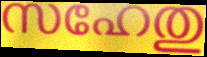
സഹേതു